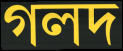
গলদ